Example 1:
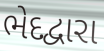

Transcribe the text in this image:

ભેદદ્વારા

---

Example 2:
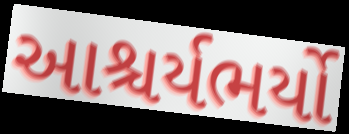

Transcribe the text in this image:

આશ્ચર્યભર્યો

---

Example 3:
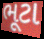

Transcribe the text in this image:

ભૂટા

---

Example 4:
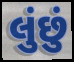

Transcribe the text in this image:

લુંછું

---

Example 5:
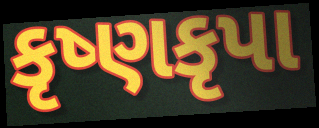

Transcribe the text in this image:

કૃષ્ણકૃપા